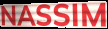
NASSIM